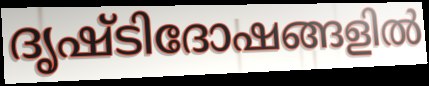
ദൃഷ്ടിദോഷങ്ങളിൽ